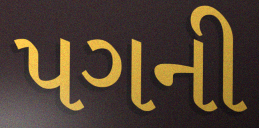
પગની